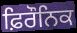
ਫ਼ਿਰੌਨਿਕ